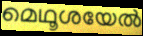
മെഥൂശയേൽ